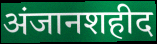
अंजानशहीद